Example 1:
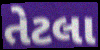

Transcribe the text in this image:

તેટલા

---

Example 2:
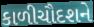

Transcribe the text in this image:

કાળીચૌદશને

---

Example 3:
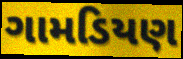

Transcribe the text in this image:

ગામડિયણ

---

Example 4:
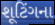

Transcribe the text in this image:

શૂટિંગના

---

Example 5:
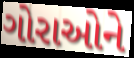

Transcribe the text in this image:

ગોરાઓને